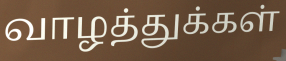
வாழத்துக்கள்